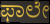
ಫಾಲೇ